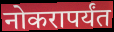
नोकरापर्यंत